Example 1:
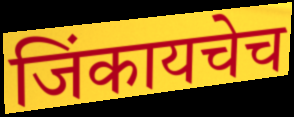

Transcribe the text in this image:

जिंकायचेच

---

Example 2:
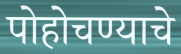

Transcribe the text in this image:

पोहोचण्याचे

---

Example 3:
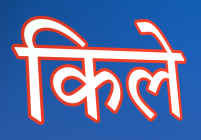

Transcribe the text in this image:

किले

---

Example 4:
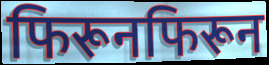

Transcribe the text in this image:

फिरूनफिरून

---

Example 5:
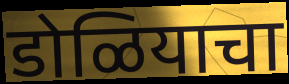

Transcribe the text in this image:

डोळियाचा